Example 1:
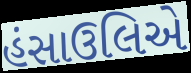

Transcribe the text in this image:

હંસાઉલિએ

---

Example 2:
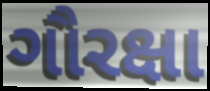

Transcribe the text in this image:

ગૌરક્ષા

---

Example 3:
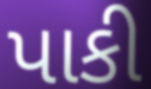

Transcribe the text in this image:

પાકી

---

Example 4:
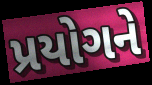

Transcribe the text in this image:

પ્રયોગને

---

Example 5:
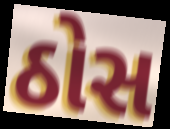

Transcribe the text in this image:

ઠોસ